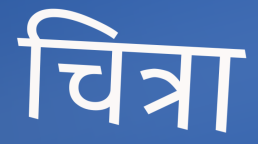
चित्रा